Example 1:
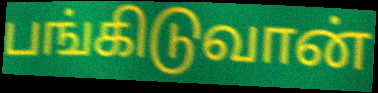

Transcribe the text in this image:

பங்கிடுவான்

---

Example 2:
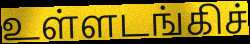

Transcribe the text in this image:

உள்ளடங்கிச்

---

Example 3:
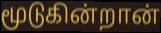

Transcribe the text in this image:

மூடுகின்றான்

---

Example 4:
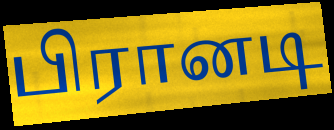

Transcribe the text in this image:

பிரானடி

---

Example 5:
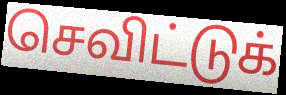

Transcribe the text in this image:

செவிட்டுக்